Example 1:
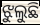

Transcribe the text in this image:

ଝୁଲୁଛି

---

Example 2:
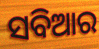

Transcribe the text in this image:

ସବିଆର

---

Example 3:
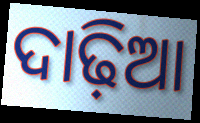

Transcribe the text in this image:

ଦାଢ଼ିଆ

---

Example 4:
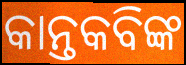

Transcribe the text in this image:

କାନ୍ତକବିଙ୍କ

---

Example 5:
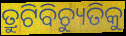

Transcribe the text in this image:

ତ୍ରୁଟିବିଚ୍ୟୁତିକୁ